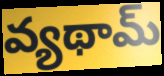
వ్యథామ్